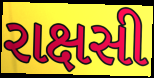
રાક્ષસી